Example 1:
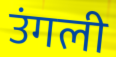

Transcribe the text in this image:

उंगली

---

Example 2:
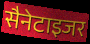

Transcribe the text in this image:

सैनेटाइजर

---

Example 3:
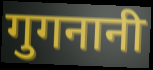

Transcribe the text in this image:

गुगनानी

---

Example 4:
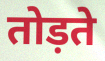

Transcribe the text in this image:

तोड़ते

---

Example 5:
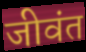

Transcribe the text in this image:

जीवंत